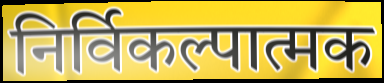
निर्विकल्पात्मक